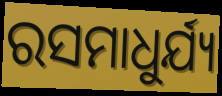
ରସମାଧୁର୍ଯ୍ୟ